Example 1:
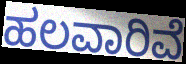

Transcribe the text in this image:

ಹಲವಾರಿವೆ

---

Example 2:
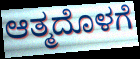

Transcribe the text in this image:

ಆತ್ಮದೊಳಗೆ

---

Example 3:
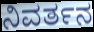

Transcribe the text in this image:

ನಿವರ್ತನ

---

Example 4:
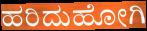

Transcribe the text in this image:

ಹರಿದುಹೋಗಿ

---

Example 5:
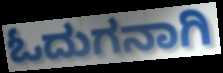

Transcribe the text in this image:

ಓದುಗನಾಗಿ